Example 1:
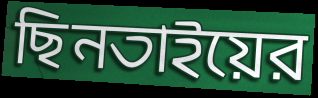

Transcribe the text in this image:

ছিনতাইয়ের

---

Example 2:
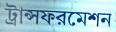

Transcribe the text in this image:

ট্রান্সফরমেশন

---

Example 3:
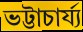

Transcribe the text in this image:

ভট্টাচার্য্য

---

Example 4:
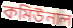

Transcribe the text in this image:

কমিউনাল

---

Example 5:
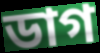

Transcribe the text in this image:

ডাগ